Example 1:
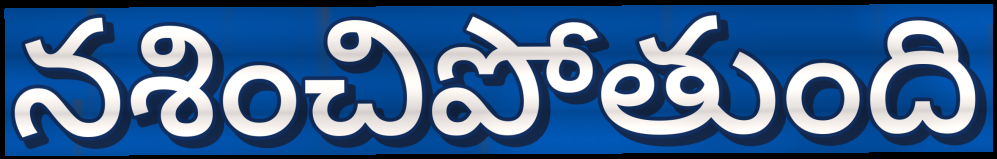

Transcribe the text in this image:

నశించిపోతుంది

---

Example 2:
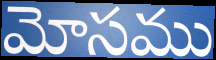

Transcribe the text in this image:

మోసము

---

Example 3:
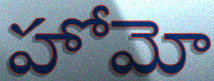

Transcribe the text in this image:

హోమో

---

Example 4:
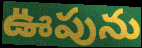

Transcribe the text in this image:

ఊపును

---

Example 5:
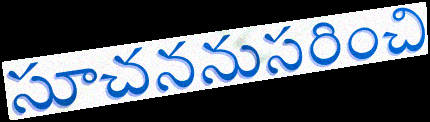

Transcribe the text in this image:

సూచననుసరించి